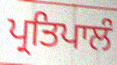
ਪ੍ਰਤਿਪਾਲੰ